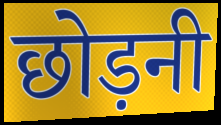
छोड़नी